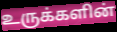
உருக்களின்